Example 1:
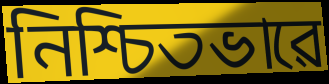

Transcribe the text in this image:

নিশ্চিতভাৱে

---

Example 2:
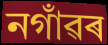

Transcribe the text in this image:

নগাঁৱৰ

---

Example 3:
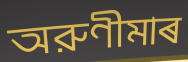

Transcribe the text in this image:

অৰুণীমাৰ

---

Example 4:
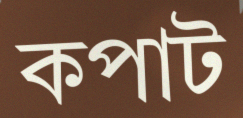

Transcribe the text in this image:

কপাট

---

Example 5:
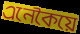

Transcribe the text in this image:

এনেকৈয়ে